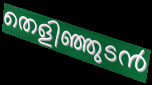
തെളിഞ്ഞുടൻ